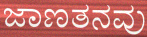
ಜಾಣತನವು